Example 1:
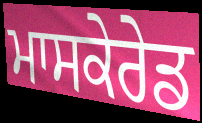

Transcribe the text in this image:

ਮਾਸਕੇਰੇਡ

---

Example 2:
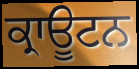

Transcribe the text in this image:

ਕ੍ਰਾਊਟਨ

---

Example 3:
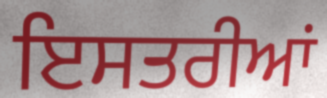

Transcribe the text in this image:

ਇਸਤਰੀਆਂ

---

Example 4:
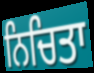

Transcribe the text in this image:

ਨਿਚਿਤਾ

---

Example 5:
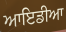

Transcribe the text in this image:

ਆਇਡੀਆ